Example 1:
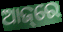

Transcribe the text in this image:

ଆଜ୍‌ରେ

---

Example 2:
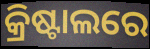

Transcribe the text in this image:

କ୍ରିଷ୍ଟାଲରେ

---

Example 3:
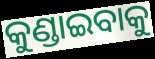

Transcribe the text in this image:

କୁଣ୍ଡାଇବାକୁ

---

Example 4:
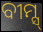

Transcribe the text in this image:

ବୀମ୍ସ୍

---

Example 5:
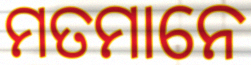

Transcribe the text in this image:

ମତମାନେ